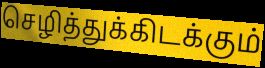
செழித்துக்கிடக்கும்